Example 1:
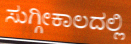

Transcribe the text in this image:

ಸುಗ್ಗೀಕಾಲದಲ್ಲಿ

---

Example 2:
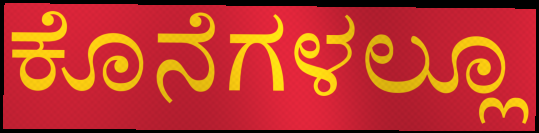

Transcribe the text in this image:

ಕೊನೆಗಳಲ್ಲೂ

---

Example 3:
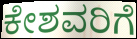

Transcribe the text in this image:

ಕೇಶವರಿಗೆ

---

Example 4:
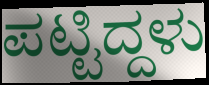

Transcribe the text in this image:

ಪಟ್ಟಿದ್ದಳು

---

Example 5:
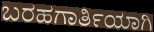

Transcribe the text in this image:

ಬರಹಗಾರ್ತಿಯಾಗಿ